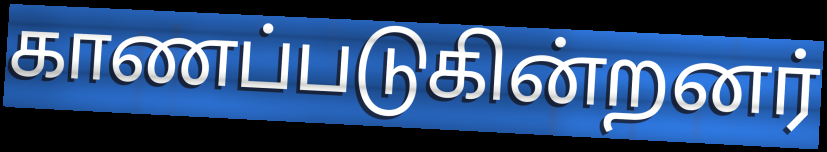
காணப்படுகின்றனர்